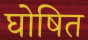
घोषित